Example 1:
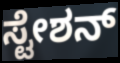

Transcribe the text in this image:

ಸ್ಟೇಶನ್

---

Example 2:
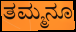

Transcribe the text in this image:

ತಮ್ಮನೂ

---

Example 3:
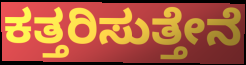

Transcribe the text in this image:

ಕತ್ತರಿಸುತ್ತೇನೆ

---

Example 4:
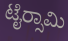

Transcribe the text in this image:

ಟೈರ‍್ಸಾಮಿ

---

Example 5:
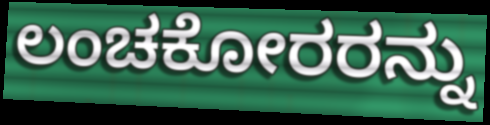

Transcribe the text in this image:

ಲಂಚಕೋರರನ್ನು